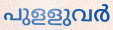
പുളളുവർ